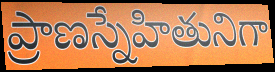
ప్రాణస్నేహితునిగా